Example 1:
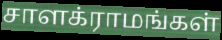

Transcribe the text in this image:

சாளக்ராமங்கள்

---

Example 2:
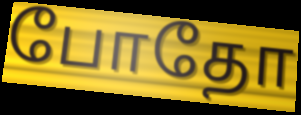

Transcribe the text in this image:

போதோ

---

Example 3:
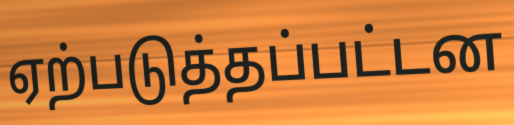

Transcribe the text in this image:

ஏற்படுத்தப்பட்டன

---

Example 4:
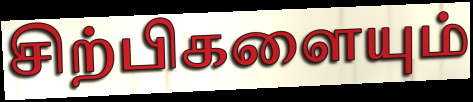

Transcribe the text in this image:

சிற்பிகளையும்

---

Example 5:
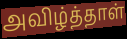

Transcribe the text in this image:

அவிழ்த்தாள்